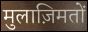
मुलाज़िमतों